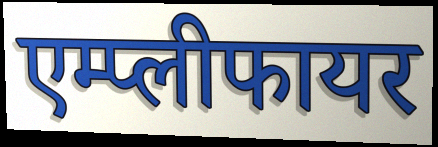
एम्प्लीफायर